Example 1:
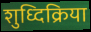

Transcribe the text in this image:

शुध्दिक्रिया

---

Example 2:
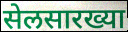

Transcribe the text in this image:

सेलसारख्या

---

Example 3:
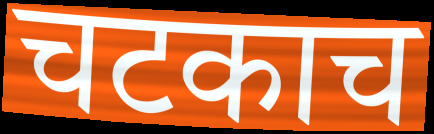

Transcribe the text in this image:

चटकाच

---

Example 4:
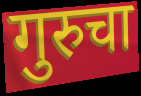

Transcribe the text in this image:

गुरुचा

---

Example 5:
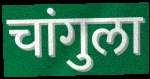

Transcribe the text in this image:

चांगुला